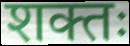
शक्तः